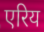
एरिय